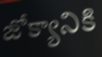
జోక్యానికి